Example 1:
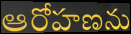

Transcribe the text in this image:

ఆరోహణను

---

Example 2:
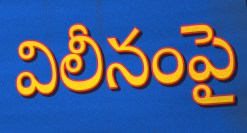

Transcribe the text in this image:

విలీనంపై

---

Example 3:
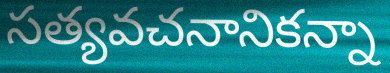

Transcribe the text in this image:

సత్యవచనానికన్నా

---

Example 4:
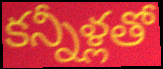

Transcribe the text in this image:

కన్నీళ్లతో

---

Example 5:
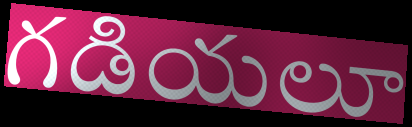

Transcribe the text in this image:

గడియలూ